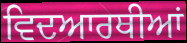
ਵਿਦਆਰਥੀਆਂ